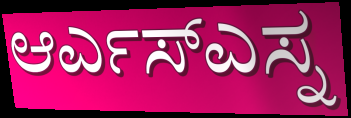
ಆರ್ಎಸ್ಎಸ್ನ